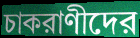
চাকরাণীদের